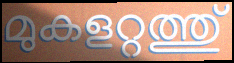
മുകളറ്റത്തു്